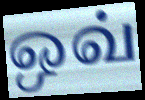
ஒவ்